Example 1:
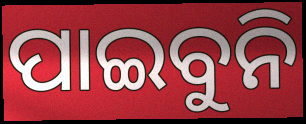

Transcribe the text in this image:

ପାଇବୁନି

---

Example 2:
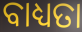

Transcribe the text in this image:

ବାଧ୍ୟତା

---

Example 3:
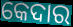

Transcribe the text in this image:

କେଦାର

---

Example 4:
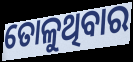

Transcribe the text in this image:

ତୋଳୁଥିବାର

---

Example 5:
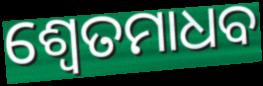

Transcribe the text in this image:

ଶ୍ୱେତମାଧବ